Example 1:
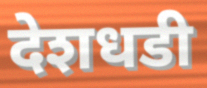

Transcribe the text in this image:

देशधडी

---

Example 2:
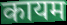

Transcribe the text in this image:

कायम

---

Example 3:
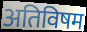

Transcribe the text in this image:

अतिविषम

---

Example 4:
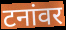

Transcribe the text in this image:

टनांवर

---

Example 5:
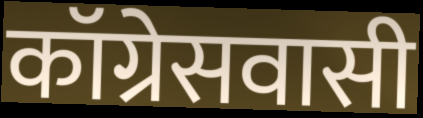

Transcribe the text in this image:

कॉग्रेसवासी